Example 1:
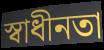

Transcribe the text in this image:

স্বাধীনতা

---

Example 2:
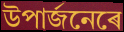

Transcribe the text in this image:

উপাৰ্জনেৰে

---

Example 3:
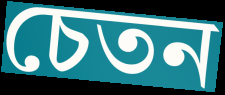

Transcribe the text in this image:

চেতন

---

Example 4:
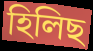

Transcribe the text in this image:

হিলিছ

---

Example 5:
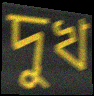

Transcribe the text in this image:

দুখ